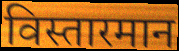
विस्तारमान